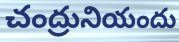
చంద్రునియందు